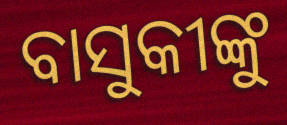
ବାସୁକୀଙ୍କୁ